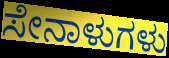
ಸೇನಾಳುಗಳು